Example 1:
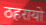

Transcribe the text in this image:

ठहरायो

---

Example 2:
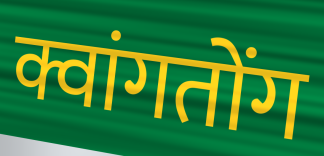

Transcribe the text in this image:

क्वांगतोंग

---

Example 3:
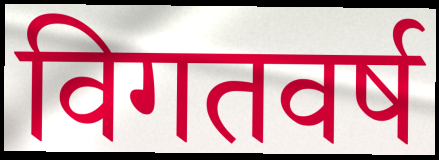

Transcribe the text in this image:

विगतवर्ष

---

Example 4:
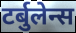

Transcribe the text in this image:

टर्बुलेन्स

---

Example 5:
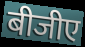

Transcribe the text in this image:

बीजीए